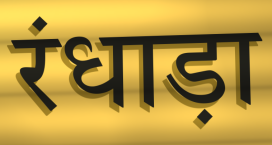
रंधाड़ा